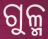
ଗୁଳ୍ମ